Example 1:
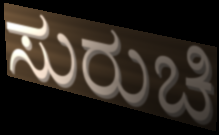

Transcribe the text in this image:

ಸುರುಚಿ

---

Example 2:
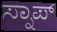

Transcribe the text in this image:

ಸ್ನಾಪ್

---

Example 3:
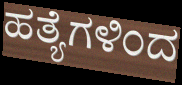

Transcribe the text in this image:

ಹತ್ಯೆಗಳಿಂದ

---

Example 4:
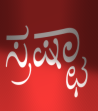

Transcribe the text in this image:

ಸ್ರಷ್ಟಾ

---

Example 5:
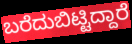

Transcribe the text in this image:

ಬರೆದುಬಿಟ್ಟಿದ್ದಾರೆ